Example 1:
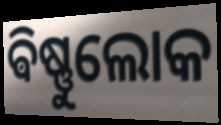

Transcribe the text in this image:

ଵିଷ୍ଣୁଲୋକ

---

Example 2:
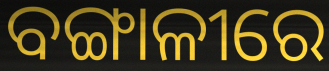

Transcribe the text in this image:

ବଙ୍ଗାଳୀରେ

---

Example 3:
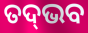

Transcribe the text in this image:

ତଦ୍‌ଭବ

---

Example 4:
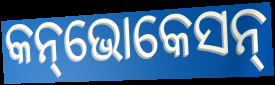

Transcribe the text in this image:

କନ୍‌ଭୋକେସନ୍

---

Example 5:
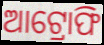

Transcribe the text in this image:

ଆଟ୍ରୋଫି